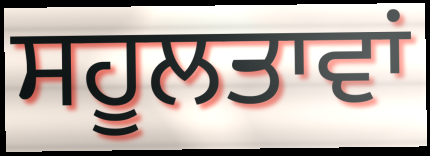
ਸਹੂਲਤਾਵਾਂ